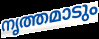
നൃത്തമാടും